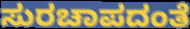
ಸುರಚಾಪದಂತೆ